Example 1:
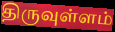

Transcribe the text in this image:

திருவுள்ளம்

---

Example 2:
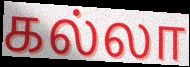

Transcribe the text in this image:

கல்லா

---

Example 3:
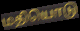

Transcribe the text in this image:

மதியொடு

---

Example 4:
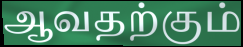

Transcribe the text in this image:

ஆவதற்கும்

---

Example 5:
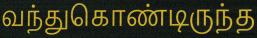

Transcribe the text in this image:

வந்துகொண்டிருந்த